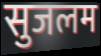
सुजलम